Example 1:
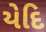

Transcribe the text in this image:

યેદિ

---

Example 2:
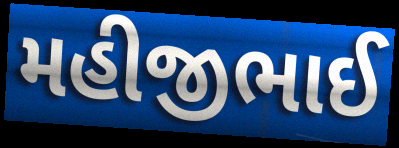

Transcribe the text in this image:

મહીજીભાઈ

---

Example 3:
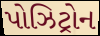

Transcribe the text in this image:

પોઝિટ્રોન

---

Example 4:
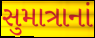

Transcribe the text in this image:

સુમાત્રાનાં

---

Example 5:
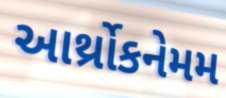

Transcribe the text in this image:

આર્થ્રોકનેમમ